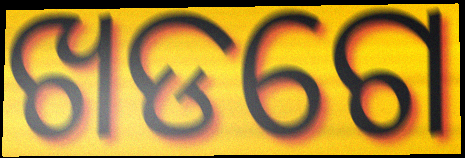
ଖଡଗେ